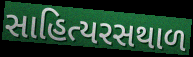
સાહિત્યરસથાળ